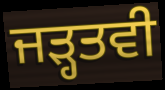
ਜੜ੍ਹਤਵੀ